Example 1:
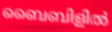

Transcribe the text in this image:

ബൈബിളിൽ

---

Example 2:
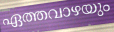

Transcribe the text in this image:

ഏത്തവാഴയും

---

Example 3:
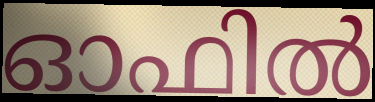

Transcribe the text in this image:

ഓഫിൽ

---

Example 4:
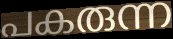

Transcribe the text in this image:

പകരുന്ന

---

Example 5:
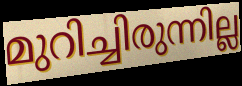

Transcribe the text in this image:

മുറിച്ചിരുന്നില്ല